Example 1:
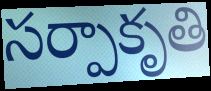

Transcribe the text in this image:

సర్పాకృతి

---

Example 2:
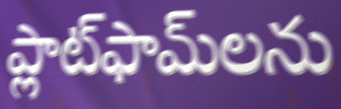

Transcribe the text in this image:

ప్లాట్‌ఫామ్‌లను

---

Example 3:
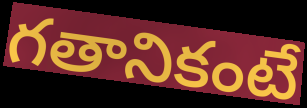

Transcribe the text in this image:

గతానికంటే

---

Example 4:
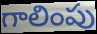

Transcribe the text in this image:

గాలింపు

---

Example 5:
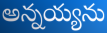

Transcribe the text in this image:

అన్నయ్యను